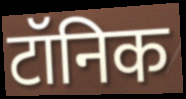
टॉनिक